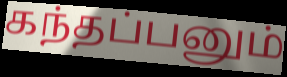
கந்தப்பனும்